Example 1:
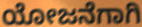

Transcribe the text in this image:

ಯೋಜನೆಗಾಗಿ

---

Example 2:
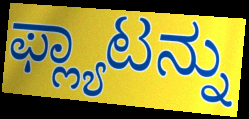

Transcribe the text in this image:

ಫ್ಲ್ಯಾಟನ್ನು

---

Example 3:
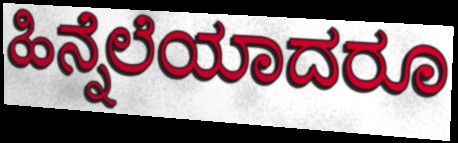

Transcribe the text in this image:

ಹಿನ್ನೆಲೆಯಾದರೂ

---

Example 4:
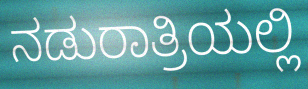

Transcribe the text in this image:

ನಡುರಾತ್ರಿಯಲ್ಲಿ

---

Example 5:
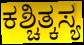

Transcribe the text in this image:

ಕಶ್ಚಿತ್ಕಸ್ಯ